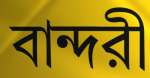
বান্দরী